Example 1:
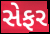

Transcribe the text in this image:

સેફર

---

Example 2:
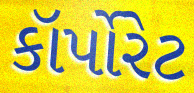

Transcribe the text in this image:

કૉર્પોરેટ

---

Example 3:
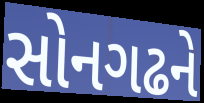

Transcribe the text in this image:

સોનગઢને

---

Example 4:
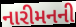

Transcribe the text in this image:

નારીમનની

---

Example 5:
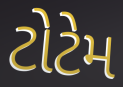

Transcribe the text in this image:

ટોટેમ